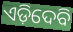
ଏଡ଼ିଦେବି